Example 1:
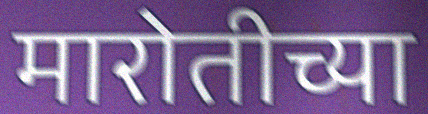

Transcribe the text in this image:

मारोतीच्या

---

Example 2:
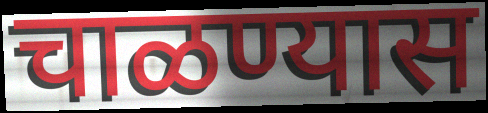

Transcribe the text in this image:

चाळण्यास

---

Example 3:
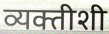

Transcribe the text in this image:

व्यक्‍तीशी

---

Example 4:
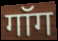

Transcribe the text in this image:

गॉग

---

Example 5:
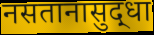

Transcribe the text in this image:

नसतानासुद्धा